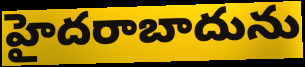
హైదరాబాదును